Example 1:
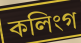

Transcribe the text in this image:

কলিংগ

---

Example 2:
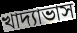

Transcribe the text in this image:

খাদ্যাভাস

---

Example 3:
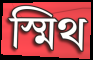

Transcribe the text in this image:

স্মিথ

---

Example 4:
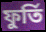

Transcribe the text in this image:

ফুৰ্তি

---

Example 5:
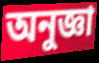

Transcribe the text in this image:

অনুজ্ঞা